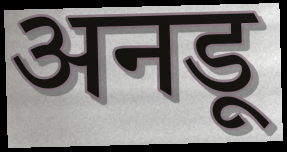
अनडू